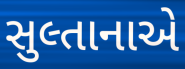
સુલ્તાનાએ